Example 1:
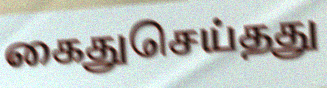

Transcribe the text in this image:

கைதுசெய்தது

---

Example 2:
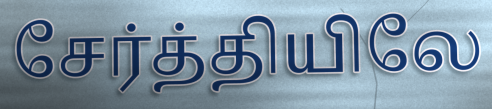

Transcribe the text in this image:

சேர்த்தியிலே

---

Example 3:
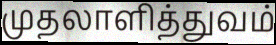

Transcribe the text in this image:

முதலாளித்துவம்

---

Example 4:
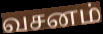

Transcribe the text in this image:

வசனம்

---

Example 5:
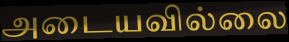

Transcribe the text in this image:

அடையவில்லை